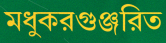
মধুকরগুঞ্জরিত